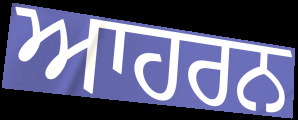
ਆਹਰਨ